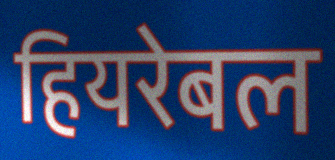
हियरेबल